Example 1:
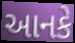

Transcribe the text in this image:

આનકે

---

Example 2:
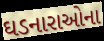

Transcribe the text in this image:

ઘડનારાઓના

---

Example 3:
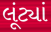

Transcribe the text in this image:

લૂંટ્યાં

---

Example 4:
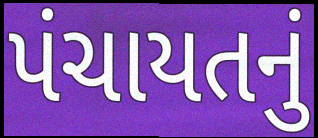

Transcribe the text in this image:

પંચાયતનું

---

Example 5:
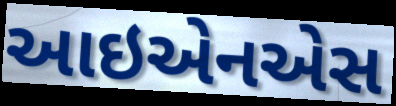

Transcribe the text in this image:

આઇએનએસ